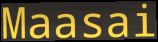
Maasai